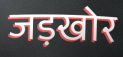
जड़खोर